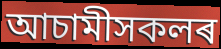
আচামীসকলৰ